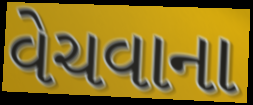
વેચવાના